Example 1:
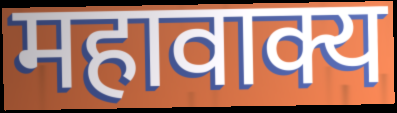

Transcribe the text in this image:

महावाक्य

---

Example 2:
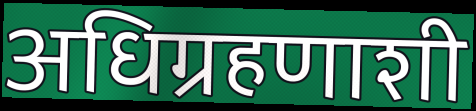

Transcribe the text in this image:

अधिग्रहणाशी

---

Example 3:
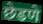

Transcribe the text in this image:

छेडणे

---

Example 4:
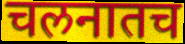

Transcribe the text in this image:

चलनातच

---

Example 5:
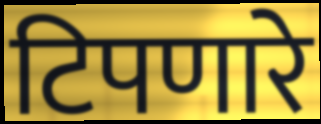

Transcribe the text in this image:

टिपणारे